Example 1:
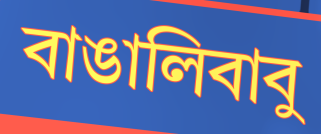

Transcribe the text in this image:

বাঙালিবাবু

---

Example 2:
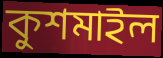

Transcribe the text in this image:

কুশমাইল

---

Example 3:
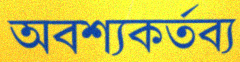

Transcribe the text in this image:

অবশ্যকর্তব্য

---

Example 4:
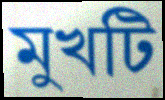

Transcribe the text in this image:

মুখটি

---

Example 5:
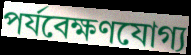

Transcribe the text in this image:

পর্যবেক্ষণযোগ্য